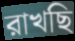
রাখছি